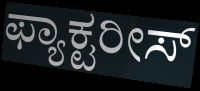
ಫ್ಯಾಕ್ಟರೀಸ್